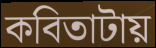
কবিতাটায়